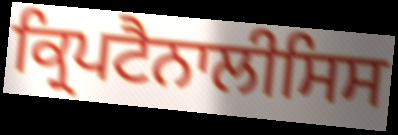
ਕ੍ਰਿਪਟੈਨਾਲੀਸਿਸ